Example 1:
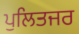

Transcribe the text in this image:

ਪੁਲਿਤਜਰ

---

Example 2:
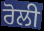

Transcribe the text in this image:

ਰੋਲੀ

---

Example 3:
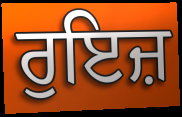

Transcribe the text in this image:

ਰੁਇਜ਼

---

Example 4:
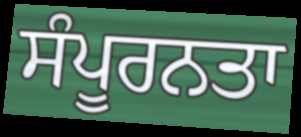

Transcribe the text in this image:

ਸੰਪੂਰਨਤਾ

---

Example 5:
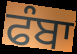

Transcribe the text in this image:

ਫੰਬਾ